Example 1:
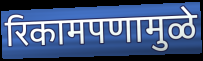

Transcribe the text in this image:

रिकामपणामुळे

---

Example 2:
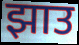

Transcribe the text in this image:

झाउ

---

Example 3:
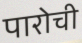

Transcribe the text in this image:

पारोची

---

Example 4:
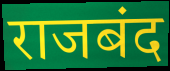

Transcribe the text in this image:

राजबंद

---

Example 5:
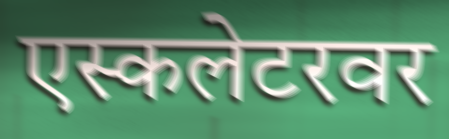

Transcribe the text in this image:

एस्कलेटरवर